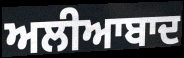
ਅਲੀਆਬਾਦ